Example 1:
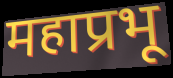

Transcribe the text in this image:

महाप्रभू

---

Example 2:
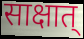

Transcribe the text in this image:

साक्षात्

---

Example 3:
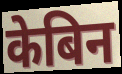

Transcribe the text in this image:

केबिन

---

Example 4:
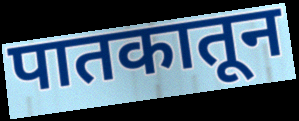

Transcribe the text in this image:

पातकातून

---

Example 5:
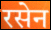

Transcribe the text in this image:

रसेन